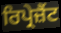
ਰਿਪ੍ਰੇਜ਼ੈਂਟ